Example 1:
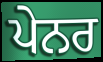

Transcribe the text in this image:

ਪੇਨਰ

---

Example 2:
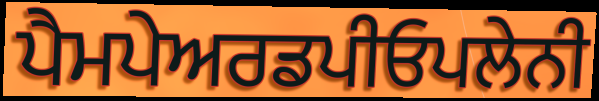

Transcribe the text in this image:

ਪੈਮਪੇਅਰਡਪੀਓਪਲੇਨੀ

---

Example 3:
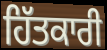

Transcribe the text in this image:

ਹਿੱਤਕਾਰੀ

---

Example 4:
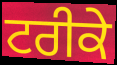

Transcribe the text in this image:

ਟਰੀਕੇ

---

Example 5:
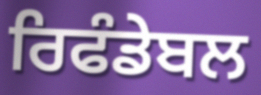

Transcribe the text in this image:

ਰਿਫੰਡੇਬਲ